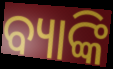
ବ୍ୟାଙ୍କି